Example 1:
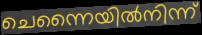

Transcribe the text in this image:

ചെന്നൈയിൽനിന്ന്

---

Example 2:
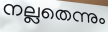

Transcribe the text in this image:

നല്ലതെന്നും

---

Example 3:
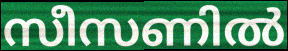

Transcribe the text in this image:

സീസണിൽ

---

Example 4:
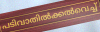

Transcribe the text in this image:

പടിവാതിൽക്കൽവെച്ച്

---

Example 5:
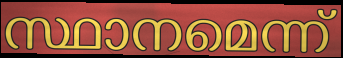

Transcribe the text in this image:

സ്ഥാനമെന്ന്